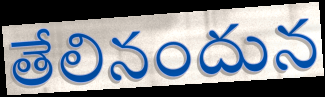
తేలినందున